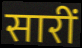
सारीं